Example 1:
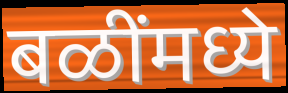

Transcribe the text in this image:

बळींमध्ये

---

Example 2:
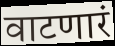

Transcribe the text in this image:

वाटणारं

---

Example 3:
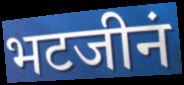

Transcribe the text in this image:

भटजीनं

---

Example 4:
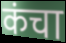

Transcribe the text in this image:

कंचा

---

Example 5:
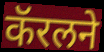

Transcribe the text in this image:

कॅरलने